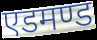
एडमण्ड